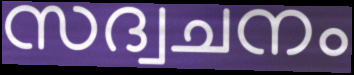
സദ്വചനം